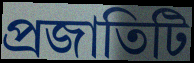
প্রজাতিটি